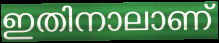
ഇതിനാലാണ്